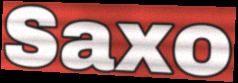
Saxo